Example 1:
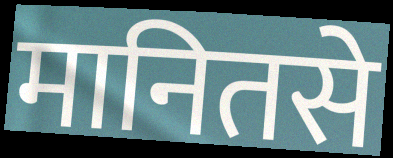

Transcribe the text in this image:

मानितसे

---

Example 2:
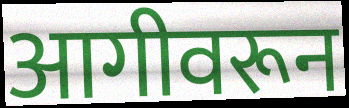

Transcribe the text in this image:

आगीवरून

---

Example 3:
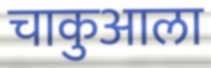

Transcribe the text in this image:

चाकुआला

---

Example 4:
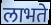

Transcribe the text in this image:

लाभते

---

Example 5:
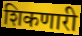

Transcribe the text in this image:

शिकणारी